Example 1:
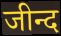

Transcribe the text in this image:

जीन्द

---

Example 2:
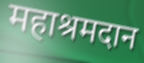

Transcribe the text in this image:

महाश्रमदान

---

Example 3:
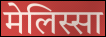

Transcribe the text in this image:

मेलिस्सा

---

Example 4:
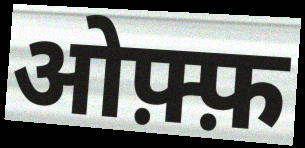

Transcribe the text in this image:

ओफ़्फ़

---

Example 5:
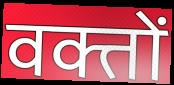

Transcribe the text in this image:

वक्तों